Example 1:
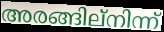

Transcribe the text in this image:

അരങ്ങില്നിന്ന്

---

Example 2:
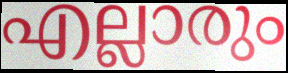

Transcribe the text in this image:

എല്ലാരും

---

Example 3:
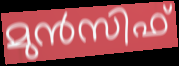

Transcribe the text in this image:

മുൻസിഫ്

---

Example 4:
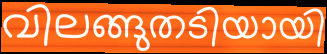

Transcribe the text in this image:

വിലങ്ങുതടിയായി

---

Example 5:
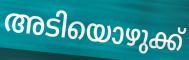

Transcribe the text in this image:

അടിയൊഴുക്ക്